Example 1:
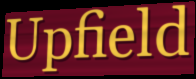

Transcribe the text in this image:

Upfield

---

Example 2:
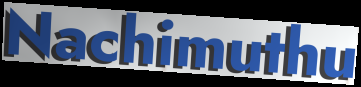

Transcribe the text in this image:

Nachimuthu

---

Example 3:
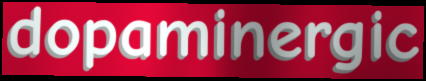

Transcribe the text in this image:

dopaminergic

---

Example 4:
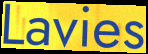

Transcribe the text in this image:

Lavies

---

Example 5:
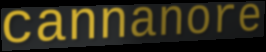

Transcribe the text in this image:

cannanore